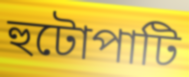
হুটোপাটি